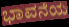
ಭಾವನೆಯ